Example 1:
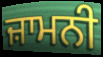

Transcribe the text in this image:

ਜ਼ਾਮਨੀ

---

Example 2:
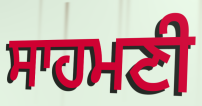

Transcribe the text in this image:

ਸਾਹਮਣੀ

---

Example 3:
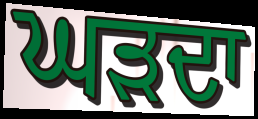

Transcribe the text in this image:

ਘੜਦਾ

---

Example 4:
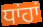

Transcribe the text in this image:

ਧਾਂਹਾਂ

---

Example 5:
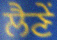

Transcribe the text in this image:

ਲੈਣੇਂ